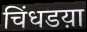
चिंधडय़ा